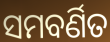
ସମବର୍ଣିତ